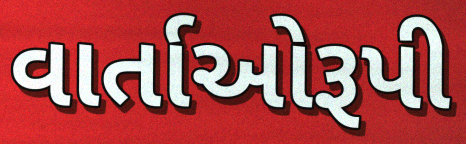
વાર્તાઓરૂપી